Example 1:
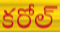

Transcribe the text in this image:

కరోల్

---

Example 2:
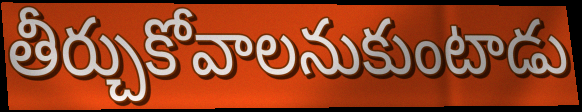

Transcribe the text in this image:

తీర్చుకోవాలనుకుంటాడు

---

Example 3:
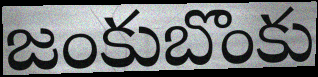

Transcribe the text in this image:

జంకుబొంకు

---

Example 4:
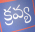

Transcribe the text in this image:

క్రవ్య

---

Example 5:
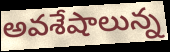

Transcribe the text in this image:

అవశేషాలున్న